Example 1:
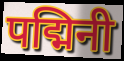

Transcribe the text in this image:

पद्मिनी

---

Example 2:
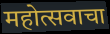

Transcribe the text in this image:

महोत्सवाचा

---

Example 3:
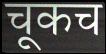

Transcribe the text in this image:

चूकच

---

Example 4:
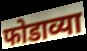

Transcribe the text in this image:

फोडाव्या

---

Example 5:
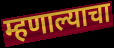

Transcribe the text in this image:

म्हणाल्याचा